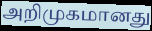
அறிமுகமானது